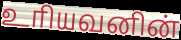
உரியவனின்